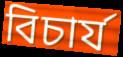
বিচাৰ্য